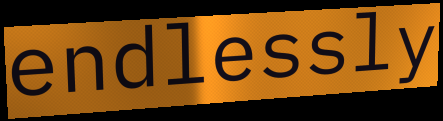
endlessly